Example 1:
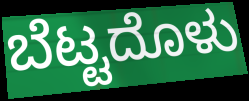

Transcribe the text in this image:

ಬೆಟ್ಟದೊಳು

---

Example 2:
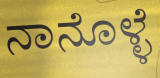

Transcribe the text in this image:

ನಾನೊಳ್ಳೆ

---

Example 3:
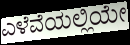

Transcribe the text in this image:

ಎಳೆವೆಯಲ್ಲಿಯೇ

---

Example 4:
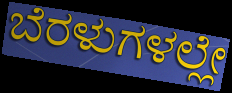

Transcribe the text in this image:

ಬೆರಳುಗಳಲ್ಲೇ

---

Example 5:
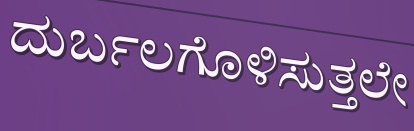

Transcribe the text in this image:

ದುರ್ಬಲಗೊಳಿಸುತ್ತಲೇ